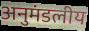
अनुमंडलीय